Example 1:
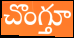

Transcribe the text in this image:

చొంగ్తూ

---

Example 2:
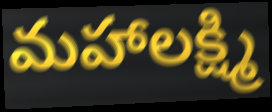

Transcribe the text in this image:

మహాలక్ష్మి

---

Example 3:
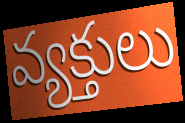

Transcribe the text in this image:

వ్యక్తులు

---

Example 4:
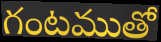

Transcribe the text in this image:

గంటముతో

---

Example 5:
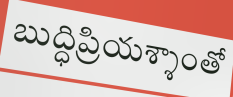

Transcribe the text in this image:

బుద్ధిప్రియశ్శాంతో